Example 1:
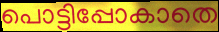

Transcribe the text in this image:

പൊട്ടിപ്പോകാതെ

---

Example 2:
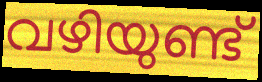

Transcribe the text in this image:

വഴിയുണ്ട്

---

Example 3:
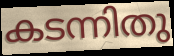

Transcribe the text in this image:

കടന്നിതു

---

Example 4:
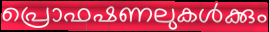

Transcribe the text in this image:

പ്രൊഫഷണലുകൾക്കും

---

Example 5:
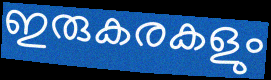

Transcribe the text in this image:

ഇരുകരകളും